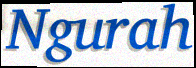
Ngurah